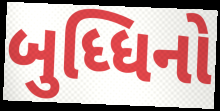
બુધ્ધિનો